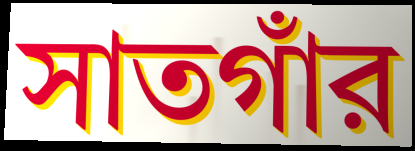
সাতগাঁর